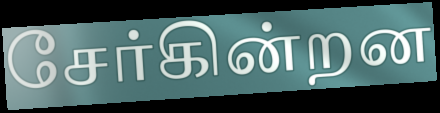
சேர்கின்றன